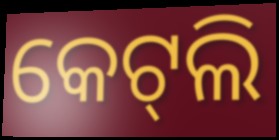
କେଟ୍‌ଲି